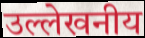
उल्लेखनीय